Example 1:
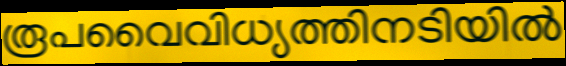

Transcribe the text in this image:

രൂപവൈവിധ്യത്തിനടിയിൽ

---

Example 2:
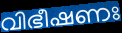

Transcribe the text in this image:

വിഭീഷണഃ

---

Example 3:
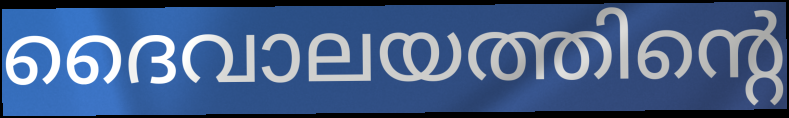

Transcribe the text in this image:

ദൈവാലയത്തിന്റെ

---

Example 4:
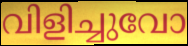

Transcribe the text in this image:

വിളിച്ചുവോ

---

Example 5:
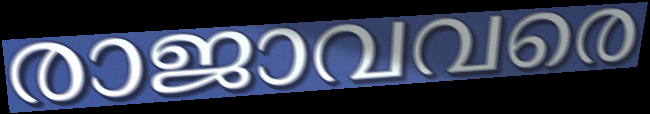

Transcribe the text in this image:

രാജാവവരെ